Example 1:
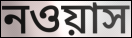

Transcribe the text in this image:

নওয়াস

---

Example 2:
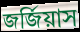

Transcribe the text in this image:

জর্জিয়াস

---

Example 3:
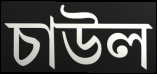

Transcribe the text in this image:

চাউল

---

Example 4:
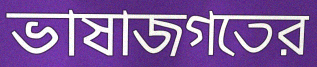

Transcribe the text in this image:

ভাষাজগতের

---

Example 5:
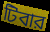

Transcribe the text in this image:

টিবার